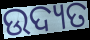
ଉଦ୍ୟତ